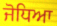
ਜੋਧਿਆ